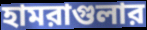
হামরাগুলার